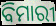
ବିମାରୀ